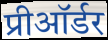
प्रीऑर्डर